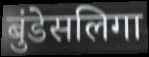
बुंडेसलिगा